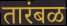
तारंबळ